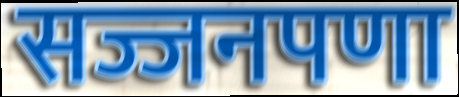
सज्जनपणा